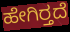
ಹೇಗಿರ್‍ತದೆ